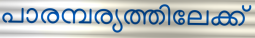
പാരമ്പര്യത്തിലേക്ക്